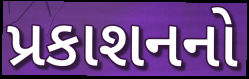
પ્રકાશનનો